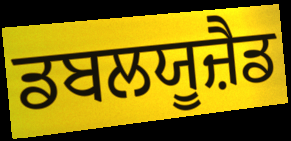
ਡਬਲਯੂਜ਼ੈਡ